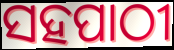
ସହପାଠୀ